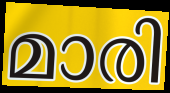
മാരി